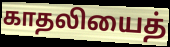
காதலியைத்